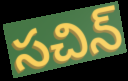
సచిన్